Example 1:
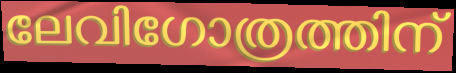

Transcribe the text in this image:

ലേവിഗോത്രത്തിന്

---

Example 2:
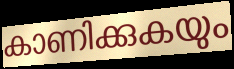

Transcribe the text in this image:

കാണിക്കുകയും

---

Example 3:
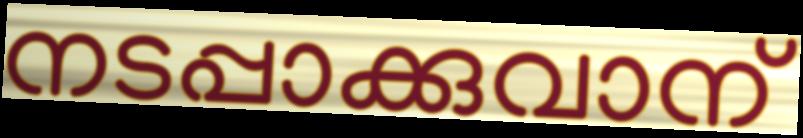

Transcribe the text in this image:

നടപ്പാക്കുവാന്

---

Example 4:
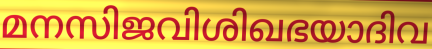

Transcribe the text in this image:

മനസിജവിശിഖഭയാദിവ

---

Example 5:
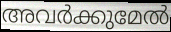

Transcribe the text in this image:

അവർക്കുമേൽ